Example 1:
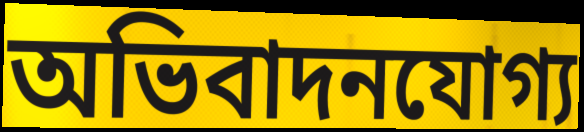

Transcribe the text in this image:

অভিবাদনযোগ্য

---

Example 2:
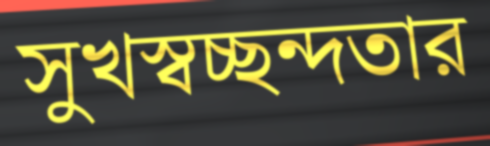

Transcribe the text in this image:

সুখস্বচ্ছন্দতার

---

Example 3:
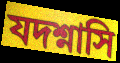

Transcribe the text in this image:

যদশ্নাসি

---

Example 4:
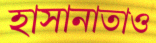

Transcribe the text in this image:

হাসানাতাও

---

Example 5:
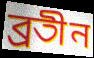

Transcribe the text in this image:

ব্রতীন